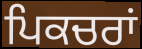
ਪਿਕਚਰਾਂ